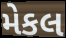
મેકલ